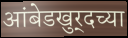
आंबेडखुर्दच्या